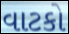
વાટકો